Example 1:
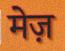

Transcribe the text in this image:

मेज़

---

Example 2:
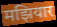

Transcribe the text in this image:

मझियार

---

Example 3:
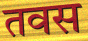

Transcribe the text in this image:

तवस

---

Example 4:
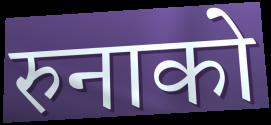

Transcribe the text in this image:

रुनाको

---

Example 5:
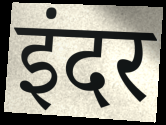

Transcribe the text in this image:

इंदर